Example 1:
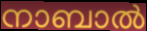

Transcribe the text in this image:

നാബാൽ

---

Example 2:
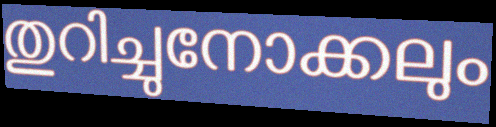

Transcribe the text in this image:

തുറിച്ചുനോക്കലും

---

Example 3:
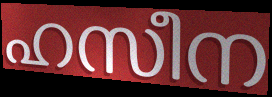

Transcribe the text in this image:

ഹസീന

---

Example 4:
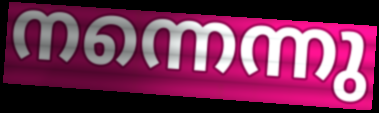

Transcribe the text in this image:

നന്നെന്നു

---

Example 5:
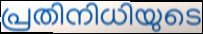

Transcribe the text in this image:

പ്രതിനിധിയുടെ